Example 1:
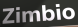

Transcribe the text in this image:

Zimbio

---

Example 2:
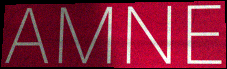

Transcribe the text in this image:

AMNE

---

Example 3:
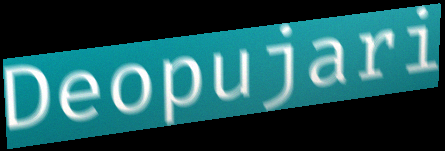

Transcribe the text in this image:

Deopujari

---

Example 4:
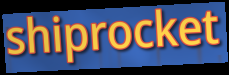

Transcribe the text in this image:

shiprocket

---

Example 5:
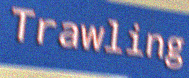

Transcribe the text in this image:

Trawling